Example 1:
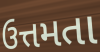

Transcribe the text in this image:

ઉત્તમતા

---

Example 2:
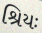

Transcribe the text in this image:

શ્રિયઃ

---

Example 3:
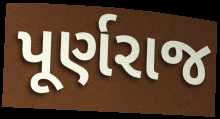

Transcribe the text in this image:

પૂર્ણરાજ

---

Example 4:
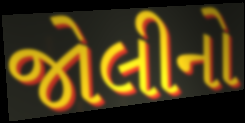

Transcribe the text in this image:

જોલીનો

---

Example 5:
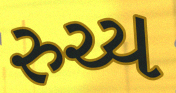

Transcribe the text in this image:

રુચ્ય